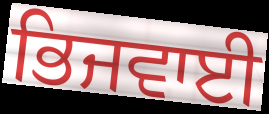
ਭਿਜਵਾਈ